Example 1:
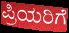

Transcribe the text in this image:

ಪ್ರಿಯರಿಗೆ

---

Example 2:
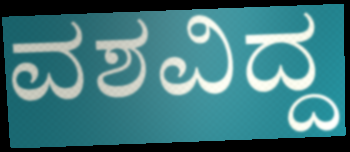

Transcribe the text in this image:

ವಶವಿದ್ದ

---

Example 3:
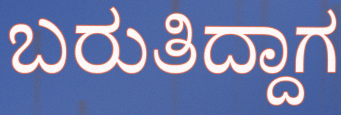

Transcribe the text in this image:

ಬರುತಿದ್ದಾಗ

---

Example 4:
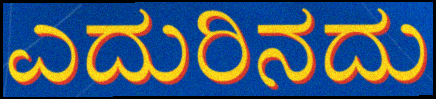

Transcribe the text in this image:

ಎದುರಿನದು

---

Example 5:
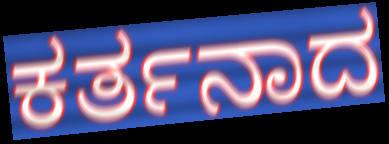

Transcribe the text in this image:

ಕರ್ತನಾದ